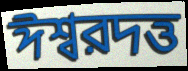
ঈশ্বরদত্ত